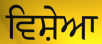
ਵਿਸ਼ੇਆ